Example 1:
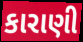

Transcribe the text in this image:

કારાણી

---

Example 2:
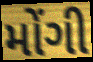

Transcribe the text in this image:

મોંગી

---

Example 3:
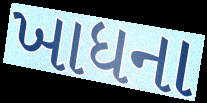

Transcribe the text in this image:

ખાધના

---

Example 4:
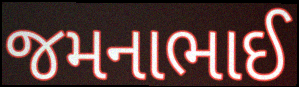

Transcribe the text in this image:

જમનાભાઈ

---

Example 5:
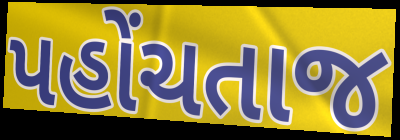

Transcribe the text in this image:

પહોંચતાજ